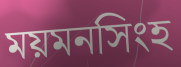
ময়মনসিংহ